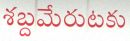
శబ్దమేరుటకు